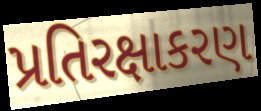
પ્રતિરક્ષાકરણ